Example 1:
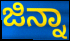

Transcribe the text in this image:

ಜಿನ್ನಾ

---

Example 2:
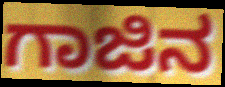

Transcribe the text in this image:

ಗಾಜಿನ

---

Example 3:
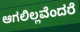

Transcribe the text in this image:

ಆಗಲಿಲ್ಲವೆಂದರೆ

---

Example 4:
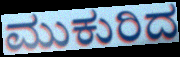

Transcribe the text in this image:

ಮುಕುರಿದ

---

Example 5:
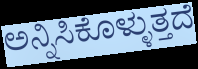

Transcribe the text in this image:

ಅನ್ನಿಸಿಕೊಳ್ಳುತ್ತದೆ